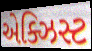
એક્ઝિસ્ટ